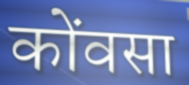
कोंवसा